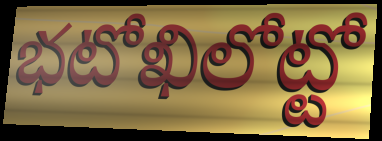
భటోఖిలోట్టో